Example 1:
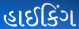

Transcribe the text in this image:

હાઈકિંગ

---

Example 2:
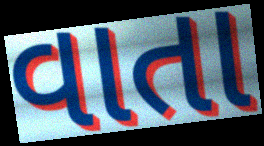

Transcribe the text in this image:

વાતા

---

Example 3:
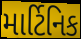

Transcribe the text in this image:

માર્ટિનિક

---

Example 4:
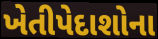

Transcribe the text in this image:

ખેતીપેદાશોના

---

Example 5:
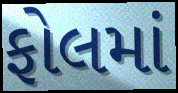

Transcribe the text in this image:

ફોલમાં